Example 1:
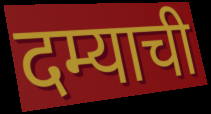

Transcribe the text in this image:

दम्याची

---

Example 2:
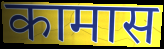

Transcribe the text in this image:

कामास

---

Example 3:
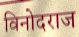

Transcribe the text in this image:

विनोदराज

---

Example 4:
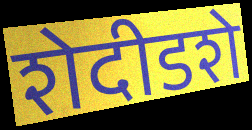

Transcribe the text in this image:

शेदीडशे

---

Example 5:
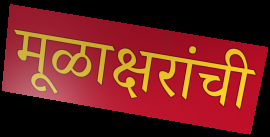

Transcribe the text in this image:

मूळाक्षरांची